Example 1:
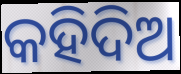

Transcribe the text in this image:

କହିଦିଅ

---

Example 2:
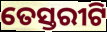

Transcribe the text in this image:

ତେସ୍ତରୀଟି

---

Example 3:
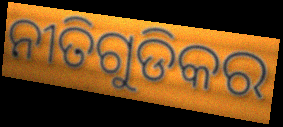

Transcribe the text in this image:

ନୀତିଗୁଡିକର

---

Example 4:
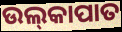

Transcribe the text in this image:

ଉଲ୍‍କାପାତ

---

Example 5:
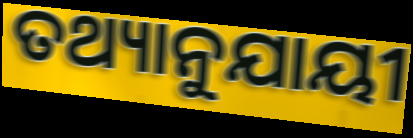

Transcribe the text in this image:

ତଥ୍ୟାନୁଯାୟୀ